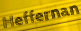
Heffernan